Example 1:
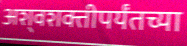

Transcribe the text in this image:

अश्वशक्तीपर्यंतच्या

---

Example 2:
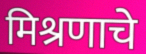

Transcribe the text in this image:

मिश्रणाचे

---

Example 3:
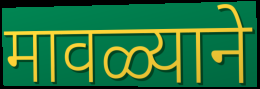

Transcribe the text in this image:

मावळ्याने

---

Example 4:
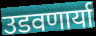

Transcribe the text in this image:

उडवणार्या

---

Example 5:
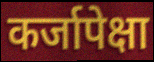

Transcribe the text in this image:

कर्जापेक्षा